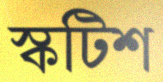
স্কটিশ